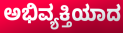
ಅಭಿವ್ಯಕ್ತಿಯಾದ